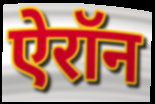
ऐरॉन